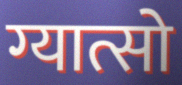
ग्यात्सो